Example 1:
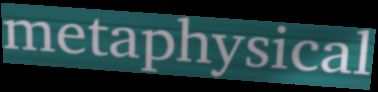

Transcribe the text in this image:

metaphysical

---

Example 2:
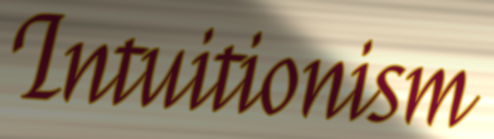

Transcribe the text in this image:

Intuitionism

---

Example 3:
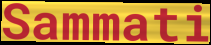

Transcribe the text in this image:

Sammati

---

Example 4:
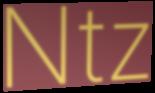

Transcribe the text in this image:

Ntz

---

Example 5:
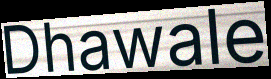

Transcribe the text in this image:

Dhawale